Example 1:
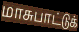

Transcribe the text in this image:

மாசுபாட்டுக்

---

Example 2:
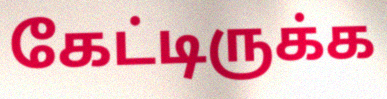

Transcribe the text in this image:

கேட்டிருக்க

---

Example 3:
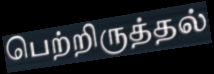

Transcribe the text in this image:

பெற்றிருத்தல்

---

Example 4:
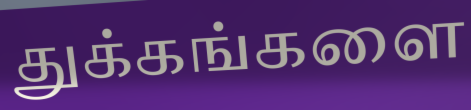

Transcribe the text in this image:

துக்கங்களை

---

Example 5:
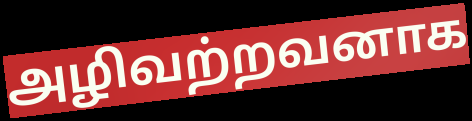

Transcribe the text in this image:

அழிவற்றவனாக